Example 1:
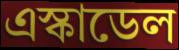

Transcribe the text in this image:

এস্কাডেল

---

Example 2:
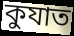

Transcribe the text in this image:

কুযাত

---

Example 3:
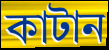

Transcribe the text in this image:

কাটান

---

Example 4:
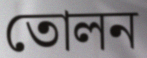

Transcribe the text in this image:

তোলন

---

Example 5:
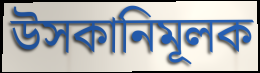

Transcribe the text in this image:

উসকানিমূলক